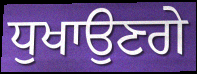
ਧੁਖਾਉਣਗੇ